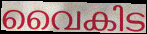
വൈകിട